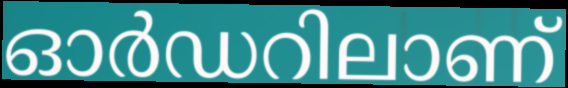
ഓർഡറിലാണ്